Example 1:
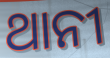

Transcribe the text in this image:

ଥାନୀ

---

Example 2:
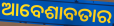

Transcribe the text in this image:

ଆବେଶାବତାର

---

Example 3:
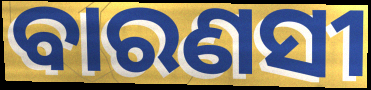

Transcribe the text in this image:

ବାରଣସୀ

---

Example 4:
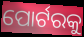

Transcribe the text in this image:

ପୋର୍ଟରକୁ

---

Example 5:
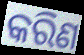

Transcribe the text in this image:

କରିଣ